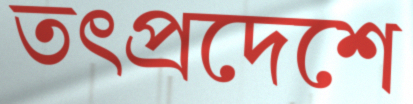
তৎপ্রদেশে